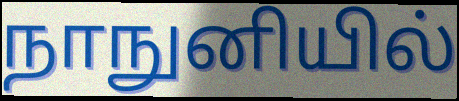
நாநுனியில்